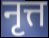
नृत्त